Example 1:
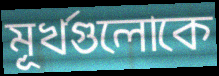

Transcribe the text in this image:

মূর্খগুলোকে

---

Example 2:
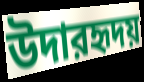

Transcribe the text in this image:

উদারহৃদয়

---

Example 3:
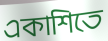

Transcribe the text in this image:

একাশিতে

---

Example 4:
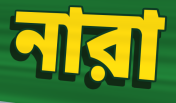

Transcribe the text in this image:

নারা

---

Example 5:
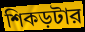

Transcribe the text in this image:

শিকড়টার